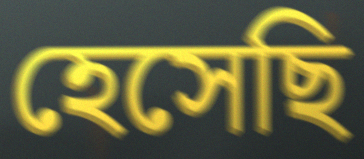
হেসেছি